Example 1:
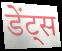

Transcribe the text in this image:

डेंट्स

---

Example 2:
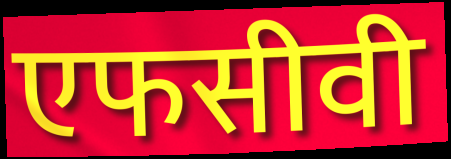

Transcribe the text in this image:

एफसीवी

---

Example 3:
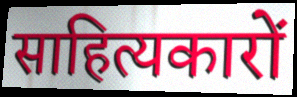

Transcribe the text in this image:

साहित्यकारों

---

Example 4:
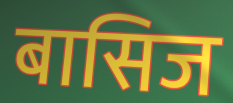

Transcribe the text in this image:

बासिज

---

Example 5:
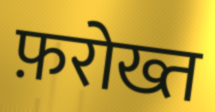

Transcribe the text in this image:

फ़रोख्त